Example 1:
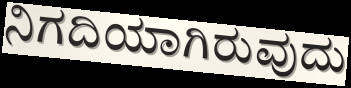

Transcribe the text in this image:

ನಿಗದಿಯಾಗಿರುವುದು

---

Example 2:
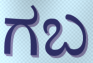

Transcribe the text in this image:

ಗಬ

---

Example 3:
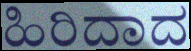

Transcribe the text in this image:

ಹಿರಿದಾದ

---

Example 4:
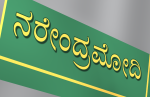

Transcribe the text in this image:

ನರೇಂದ್ರಮೋದಿ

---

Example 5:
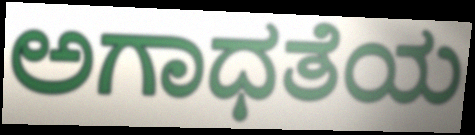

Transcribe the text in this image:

ಅಗಾಧತೆಯ